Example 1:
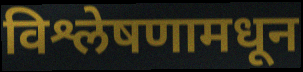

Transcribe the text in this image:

विश्लेषणामधून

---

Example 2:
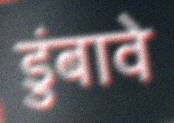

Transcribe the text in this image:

डुंबावे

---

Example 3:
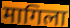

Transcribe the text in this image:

मागिला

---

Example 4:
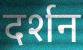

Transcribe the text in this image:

दर्शन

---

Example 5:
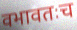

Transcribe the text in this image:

वभावतःच